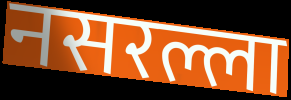
नसरल्ला